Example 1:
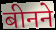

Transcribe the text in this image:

बीनने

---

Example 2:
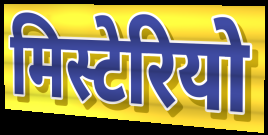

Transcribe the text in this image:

मिस्टेरियो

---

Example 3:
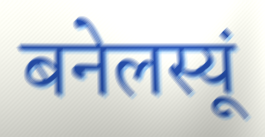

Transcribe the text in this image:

बनेलस्यूं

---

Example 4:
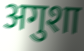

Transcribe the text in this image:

अगुशा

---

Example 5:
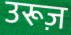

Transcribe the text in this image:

उरूज़